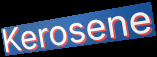
Kerosene